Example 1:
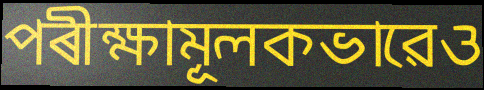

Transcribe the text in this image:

পৰীক্ষামূলকভাৱেও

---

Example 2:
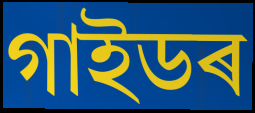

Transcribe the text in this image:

গাইডৰ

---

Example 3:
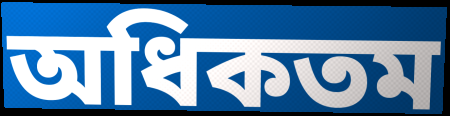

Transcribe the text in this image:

অধিকতম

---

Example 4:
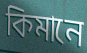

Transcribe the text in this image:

কিমানে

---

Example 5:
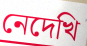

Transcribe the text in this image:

নেদেখি